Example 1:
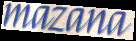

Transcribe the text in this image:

mazana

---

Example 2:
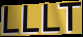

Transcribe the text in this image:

LLLT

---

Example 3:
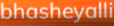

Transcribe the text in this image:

bhasheyalli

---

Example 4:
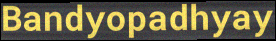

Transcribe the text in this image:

Bandyopadhyay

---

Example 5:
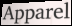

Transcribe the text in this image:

Apparel